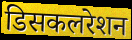
डिसकलरेशन